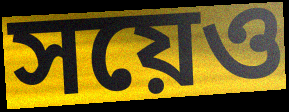
সয়েও